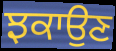
ਝਕਾਉਣ